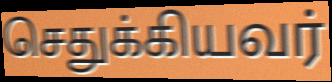
செதுக்கியவர்